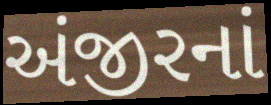
અંજીરનાં